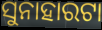
ସୁନାହାରଟା